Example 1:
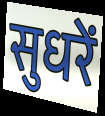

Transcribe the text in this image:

सुधरें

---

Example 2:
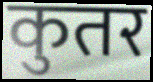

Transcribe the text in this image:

कुतर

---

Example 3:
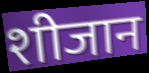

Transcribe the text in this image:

शीजान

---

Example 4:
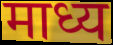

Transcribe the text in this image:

माध्य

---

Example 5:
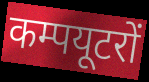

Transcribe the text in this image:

कम्पयूटरों